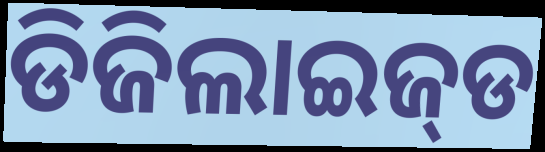
ଡିଜିଲାଇଜ୍‌ଡ